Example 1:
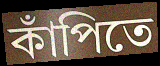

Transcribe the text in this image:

কাঁপিতে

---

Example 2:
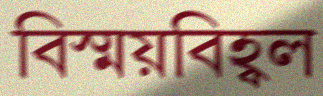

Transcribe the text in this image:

বিস্ময়বিহ্বল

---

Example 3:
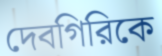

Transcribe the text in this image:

দেবগিরিকে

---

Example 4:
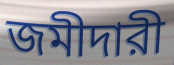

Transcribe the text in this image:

জমীদারী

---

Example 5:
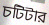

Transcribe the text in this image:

চটিটার